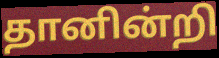
தானின்றி